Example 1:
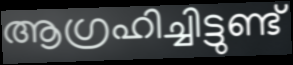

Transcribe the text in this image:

ആഗ്രഹിച്ചിട്ടുണ്ട്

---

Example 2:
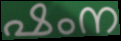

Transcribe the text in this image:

ഷംന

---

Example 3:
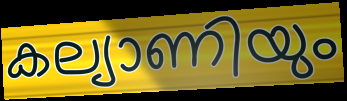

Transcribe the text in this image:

കല്യാണിയും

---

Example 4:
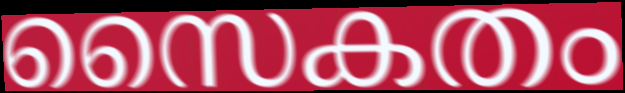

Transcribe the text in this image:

സൈകതം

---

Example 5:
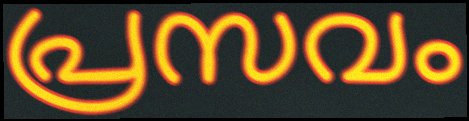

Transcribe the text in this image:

പ്രസവം